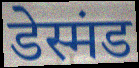
डेस्मंड